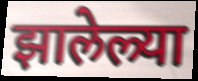
झालेल्या